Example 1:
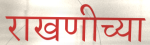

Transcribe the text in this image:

राखणीच्या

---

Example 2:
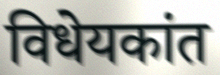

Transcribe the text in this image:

विधेयकांत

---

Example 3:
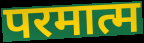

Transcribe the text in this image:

परमात्म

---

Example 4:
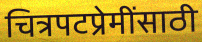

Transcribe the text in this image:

चित्रपटप्रेमींसाठी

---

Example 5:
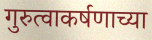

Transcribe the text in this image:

गुरुत्वाकर्षणाच्या